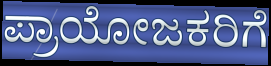
ಪ್ರಾಯೋಜಕರಿಗೆ